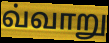
வ்வாறு